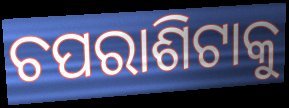
ଚପରାଶିଟାକୁ